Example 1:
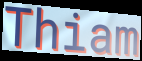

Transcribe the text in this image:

Thiam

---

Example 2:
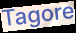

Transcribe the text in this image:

Tagore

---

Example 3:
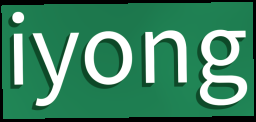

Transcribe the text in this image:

iyong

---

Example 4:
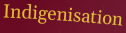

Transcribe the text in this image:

Indigenisation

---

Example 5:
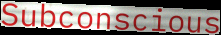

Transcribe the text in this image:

Subconscious